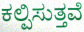
ಕಲ್ಪಿಸುತ್ತವೆ